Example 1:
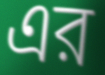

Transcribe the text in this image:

এর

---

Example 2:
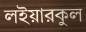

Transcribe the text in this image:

লইয়ারকুল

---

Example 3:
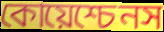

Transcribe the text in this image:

কোয়েশ্চেনস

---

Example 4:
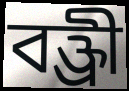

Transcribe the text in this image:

বক্ত্রী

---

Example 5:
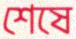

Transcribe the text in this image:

শেষে